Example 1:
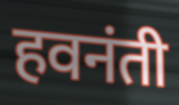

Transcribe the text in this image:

हवनंती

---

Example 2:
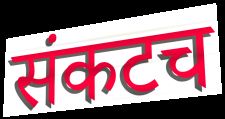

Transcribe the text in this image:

संकटच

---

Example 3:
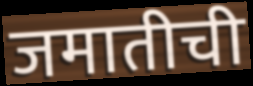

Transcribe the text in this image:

जमातीची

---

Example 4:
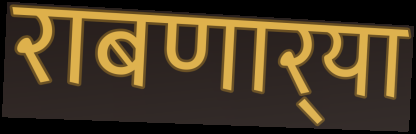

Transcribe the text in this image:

राबणार्‍या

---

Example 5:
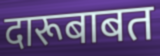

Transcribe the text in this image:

दारूबाबत